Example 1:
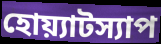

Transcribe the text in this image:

হোয়্যাটস্যাপ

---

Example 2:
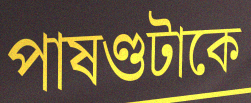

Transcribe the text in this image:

পাষণ্ডটাকে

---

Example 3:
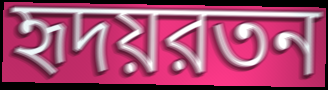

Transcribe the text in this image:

হৃদয়রতন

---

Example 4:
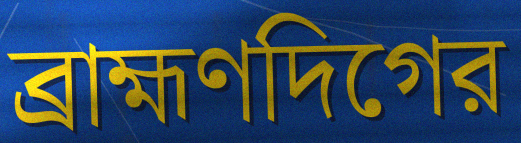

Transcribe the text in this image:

ব্রাহ্মণদিগের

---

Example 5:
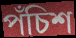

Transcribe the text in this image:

পঁচিশ